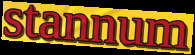
stannum